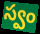
స్వం